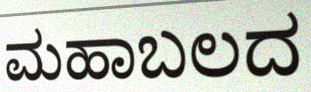
ಮಹಾಬಲದ